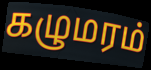
கழுமரம்